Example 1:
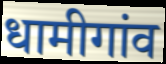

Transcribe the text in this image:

धामीगांव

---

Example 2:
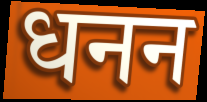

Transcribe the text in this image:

धनन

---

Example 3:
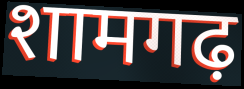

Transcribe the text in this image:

शामगढ़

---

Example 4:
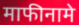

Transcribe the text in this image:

माफीनामे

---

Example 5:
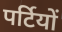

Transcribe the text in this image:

पर्टियों